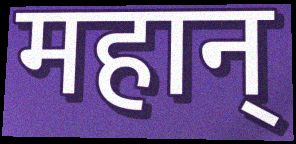
महान्